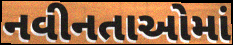
નવીનતાઓમાં